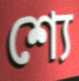
শ্যে